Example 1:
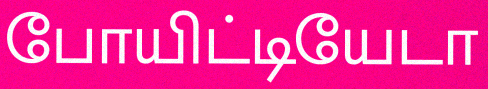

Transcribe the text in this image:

போயிட்டியேடா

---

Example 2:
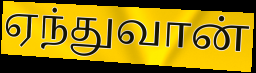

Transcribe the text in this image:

ஏந்துவான்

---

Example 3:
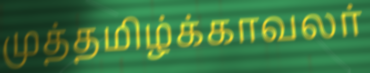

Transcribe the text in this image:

முத்தமிழ்க்காவலர்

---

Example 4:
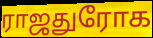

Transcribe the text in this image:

ராஜதுரோக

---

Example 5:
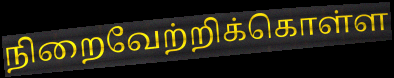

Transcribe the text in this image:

நிறைவேற்றிக்கொள்ள